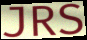
JRS